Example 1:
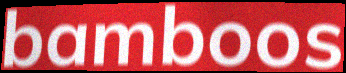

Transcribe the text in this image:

bamboos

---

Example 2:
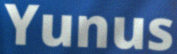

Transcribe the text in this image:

Yunus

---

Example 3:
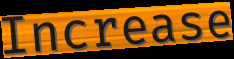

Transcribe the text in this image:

Increase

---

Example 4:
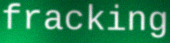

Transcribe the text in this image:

fracking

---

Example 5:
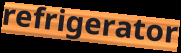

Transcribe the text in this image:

refrigerator